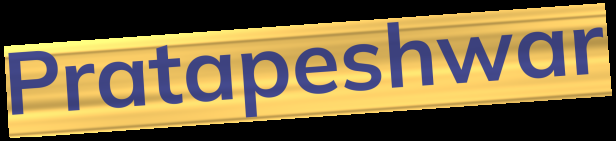
Pratapeshwar